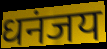
धनंजय